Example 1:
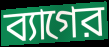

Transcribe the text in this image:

ব্যাগের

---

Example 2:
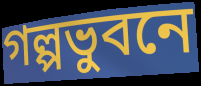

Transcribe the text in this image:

গল্পভুবনে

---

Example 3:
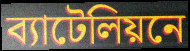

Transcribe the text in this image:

ব্যাটেলিয়নে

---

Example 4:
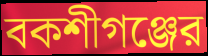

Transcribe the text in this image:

বকশীগঞ্জের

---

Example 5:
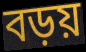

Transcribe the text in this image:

বড়য়